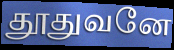
தூதுவனே